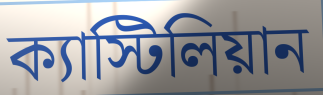
ক্যাস্টিলিয়ান